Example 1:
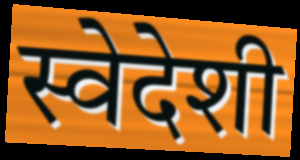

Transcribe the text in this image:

स्वेदेशी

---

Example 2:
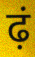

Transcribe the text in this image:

ढ़ं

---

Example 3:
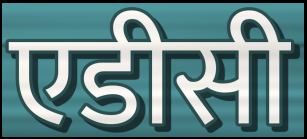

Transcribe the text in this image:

एडीसी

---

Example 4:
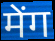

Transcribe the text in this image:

मेंग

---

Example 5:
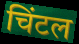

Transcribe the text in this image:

चिंटल